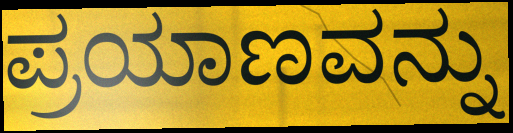
ಪ್ರಯಾಣವನ್ನು